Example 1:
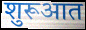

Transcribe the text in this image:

शुरूआत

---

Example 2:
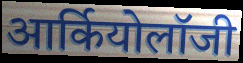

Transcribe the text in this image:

आर्कियोलॉजी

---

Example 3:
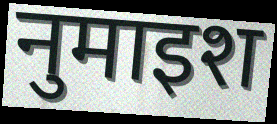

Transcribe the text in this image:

नुमाइश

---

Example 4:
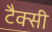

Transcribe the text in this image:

टैक्सी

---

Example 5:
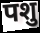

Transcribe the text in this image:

पशु